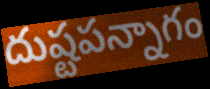
దుష్టపన్నాగం